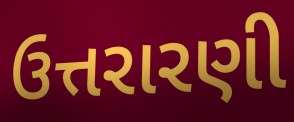
ઉત્તરારણી